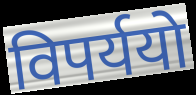
विपर्ययो